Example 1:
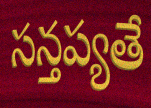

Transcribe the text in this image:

సన్తప్యతే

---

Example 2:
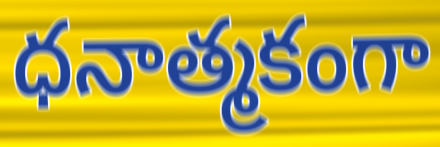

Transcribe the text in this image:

ధనాత్మకంగా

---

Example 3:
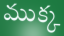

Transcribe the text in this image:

ముక్క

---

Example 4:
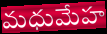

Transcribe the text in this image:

మధుమేహ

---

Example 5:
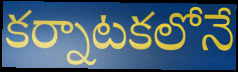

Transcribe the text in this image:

కర్నాటకలోనే